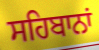
ਸਹਿਬਾਨਾਂ